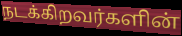
நடக்கிறவர்களின்